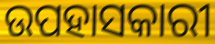
ଉପହାସକାରୀ